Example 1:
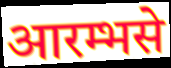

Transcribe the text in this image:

आरम्भसे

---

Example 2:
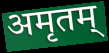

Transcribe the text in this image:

अमृतम्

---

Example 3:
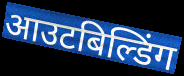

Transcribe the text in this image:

आउटबिल्डिंग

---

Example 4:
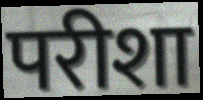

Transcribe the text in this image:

परीशा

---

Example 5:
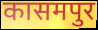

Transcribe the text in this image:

कासमपुर